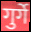
गुर्गे